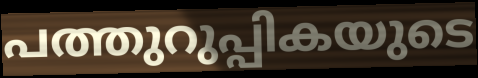
പത്തുറുപ്പികയുടെ